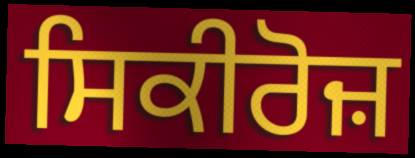
ਸਿਕੀਰੋਜ਼